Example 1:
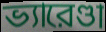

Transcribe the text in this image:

ভ্যারেণ্ডা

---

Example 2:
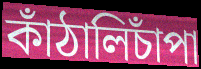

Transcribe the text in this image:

কাঁঠালিচাঁপা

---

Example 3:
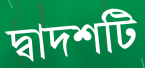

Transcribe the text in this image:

দ্বাদশটি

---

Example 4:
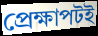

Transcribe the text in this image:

প্রেক্ষাপটই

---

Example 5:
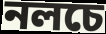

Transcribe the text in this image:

নলচে